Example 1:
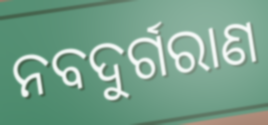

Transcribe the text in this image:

ନବଦୁର୍ଗରାଣ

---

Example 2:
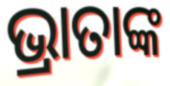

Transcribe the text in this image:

ଭ୍ରାତାଙ୍କ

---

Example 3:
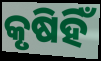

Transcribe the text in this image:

କୃଷିହିଁ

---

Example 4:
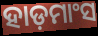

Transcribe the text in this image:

ହାଡ଼ମାଂସ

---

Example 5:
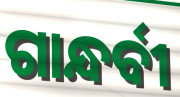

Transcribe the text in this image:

ଗାନ୍ଧର୍ବୀ